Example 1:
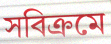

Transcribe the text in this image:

সবিক্রমে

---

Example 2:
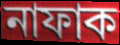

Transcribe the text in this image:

নাফাক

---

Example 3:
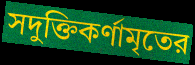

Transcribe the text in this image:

সদুক্তিকর্ণামৃতের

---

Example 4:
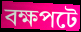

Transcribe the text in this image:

বক্ষপটে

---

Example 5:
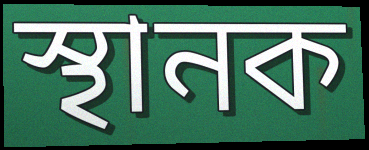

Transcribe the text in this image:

স্থানক